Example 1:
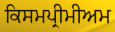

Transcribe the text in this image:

ਕਿਸਮਪ੍ਰੀਮੀਅਮ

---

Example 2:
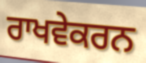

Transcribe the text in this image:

ਰਾਖਵੇਕਰਨ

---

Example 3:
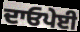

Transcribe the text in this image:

ਦਾਓਪੇਈ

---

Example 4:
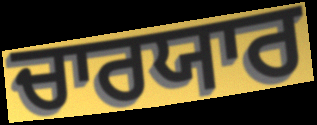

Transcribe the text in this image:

ਚਾਰਯਾਰ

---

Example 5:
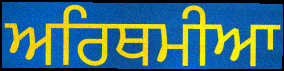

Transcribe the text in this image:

ਅਰਿਥਮੀਆ